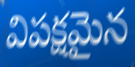
విపక్షమైన